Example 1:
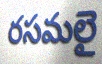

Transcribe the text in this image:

రసమలై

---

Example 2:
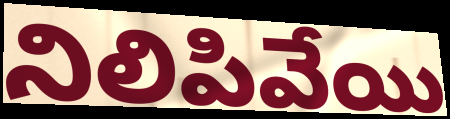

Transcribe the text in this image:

నిలిపివేయి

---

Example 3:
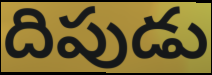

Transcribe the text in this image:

దిపుడు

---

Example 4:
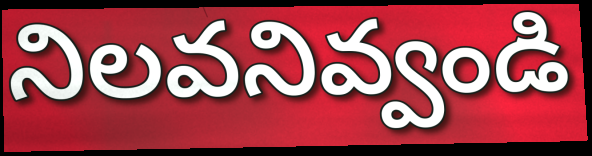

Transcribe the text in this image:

నిలవనివ్వండి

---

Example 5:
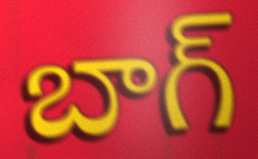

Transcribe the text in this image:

బాగ్